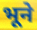
भूने